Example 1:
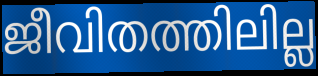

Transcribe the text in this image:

ജീവിതത്തിലില്ല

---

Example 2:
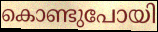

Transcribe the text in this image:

കൊണ്ടുപോയി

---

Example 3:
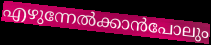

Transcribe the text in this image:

എഴുന്നേൽക്കാൻപോലും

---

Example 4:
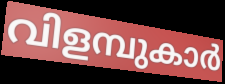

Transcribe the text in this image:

വിളമ്പുകാർ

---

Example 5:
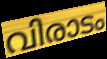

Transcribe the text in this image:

വിരാടം